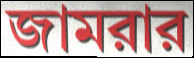
জামরার